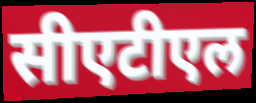
सीएटीएल